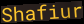
Shafiur